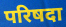
परिषदा